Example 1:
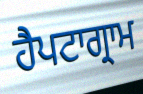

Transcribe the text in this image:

ਹੈਪਟਾਗ੍ਰਾਮ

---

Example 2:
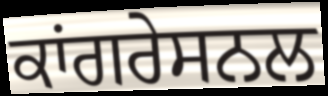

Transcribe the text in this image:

ਕਾਂਗਰੇਸਨਲ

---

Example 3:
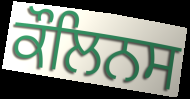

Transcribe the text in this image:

ਕੌਲਿਨਸ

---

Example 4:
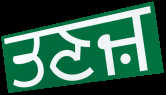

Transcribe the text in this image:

ਤਣਜ਼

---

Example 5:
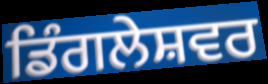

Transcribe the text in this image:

ਡਿੰਗਲੇਸ਼ਵਰ